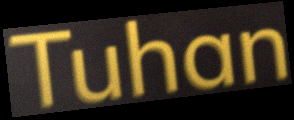
Tuhan